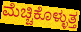
ಮೆಚ್ಚಿಕೊಳ್ಳುತ್ತ